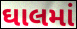
ઘાલમાં